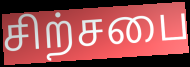
சிற்சபை